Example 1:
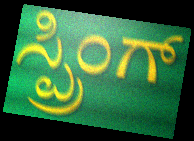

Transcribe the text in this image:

ಸ್ಪ್ರಿಂಗ್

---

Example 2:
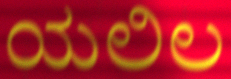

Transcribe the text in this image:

ಯಲಿಲ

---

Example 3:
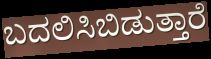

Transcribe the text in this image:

ಬದಲಿಸಿಬಿಡುತ್ತಾರೆ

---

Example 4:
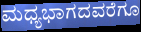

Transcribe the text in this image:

ಮಧ್ಯಭಾಗದವರೆಗೂ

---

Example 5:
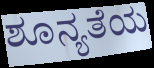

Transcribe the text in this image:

ಶೂನ್ಯತೆಯ